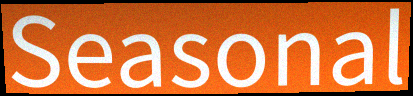
Seasonal